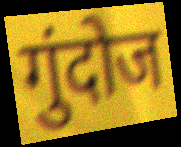
गुंदोज